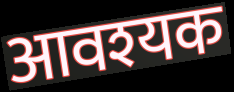
आवश्‍यक